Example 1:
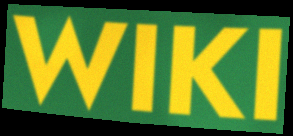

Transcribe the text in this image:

WIKI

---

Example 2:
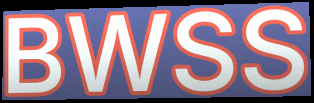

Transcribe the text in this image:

BWSS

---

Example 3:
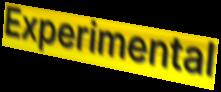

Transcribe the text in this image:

Experimental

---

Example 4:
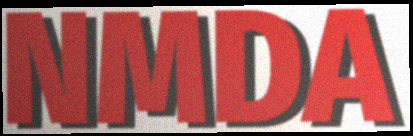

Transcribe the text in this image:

NMDA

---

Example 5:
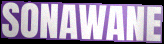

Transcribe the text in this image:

SONAWANE